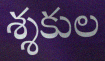
శ్శకుల